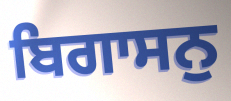
ਬਿਗਾਸਨੁ